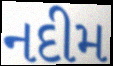
નદીમ